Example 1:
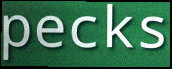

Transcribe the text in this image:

pecks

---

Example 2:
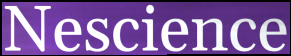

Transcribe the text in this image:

Nescience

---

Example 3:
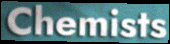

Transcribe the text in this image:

Chemists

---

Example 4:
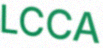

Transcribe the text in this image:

LCCA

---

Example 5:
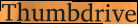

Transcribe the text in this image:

Thumbdrive